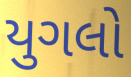
યુગલો